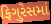
ફિગુરેસમાં